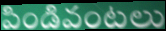
పిండివంటలు